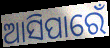
ଆସିପାରେଁ